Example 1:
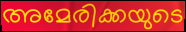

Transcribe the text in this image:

അമേരിക്കയുടെ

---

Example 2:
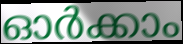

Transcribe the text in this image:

ഓർക്കാം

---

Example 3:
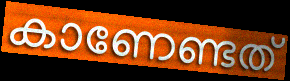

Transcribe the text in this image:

കാണേണ്ടത്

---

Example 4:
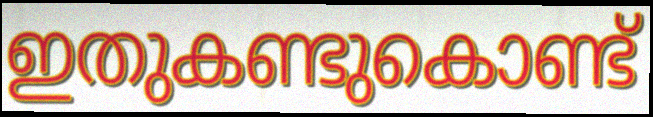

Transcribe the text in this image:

ഇതുകണ്ടുകൊണ്ട്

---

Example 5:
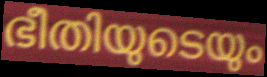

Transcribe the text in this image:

ഭീതിയുടെയും